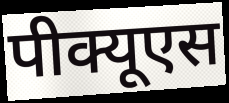
पीक्यूएस